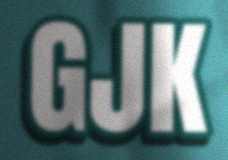
GJK